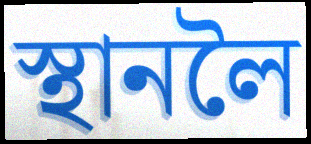
স্থানলৈ